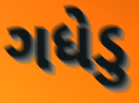
ગધેડુ